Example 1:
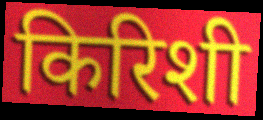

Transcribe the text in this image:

किरिशी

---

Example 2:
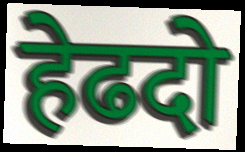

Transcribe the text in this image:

हेढदो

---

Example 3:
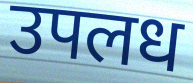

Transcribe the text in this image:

उपलध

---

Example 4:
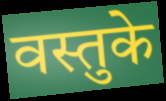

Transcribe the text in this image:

वस्तुके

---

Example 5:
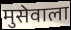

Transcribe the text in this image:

मुसेवाला